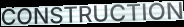
CONSTRUCTION